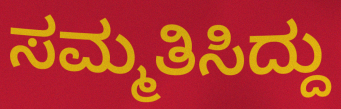
ಸಮ್ಮತಿಸಿದ್ದು